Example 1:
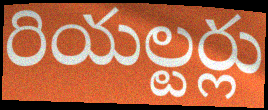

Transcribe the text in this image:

రియల్టర్లు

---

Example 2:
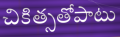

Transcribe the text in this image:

చికిత్సతోపాటు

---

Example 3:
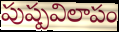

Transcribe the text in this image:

పుష్పవిలాపం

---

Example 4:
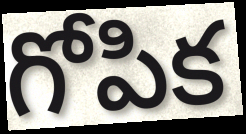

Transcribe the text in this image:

గోపిక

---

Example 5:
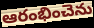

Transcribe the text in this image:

ఆరంభించెను